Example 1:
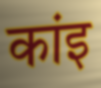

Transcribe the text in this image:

कांइ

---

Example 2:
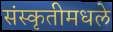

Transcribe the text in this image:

संस्कृतीमधले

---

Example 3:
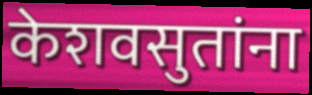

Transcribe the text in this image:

केशवसुतांना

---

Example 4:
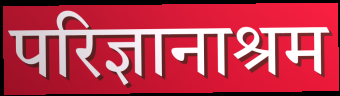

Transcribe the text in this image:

परिज्ञानाश्रम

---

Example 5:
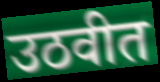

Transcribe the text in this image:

उठवीत